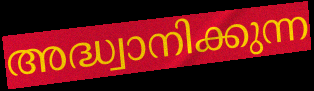
അദ്ധ്വാനിക്കുന്ന